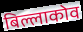
बिल्लाकोव